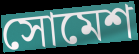
সোমেশ